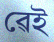
ৱেই